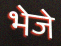
भेजे